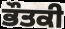
ਭੌਤਕੀ